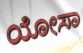
ಯೋಸಾ